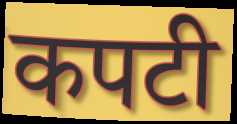
कपटी